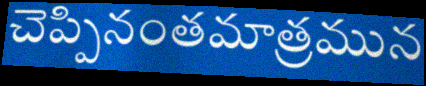
చెప్పినంతమాత్రమున